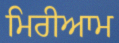
ਮਿਰੀਆਮ